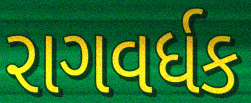
રાગવર્ધક